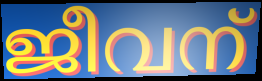
ജീവന്